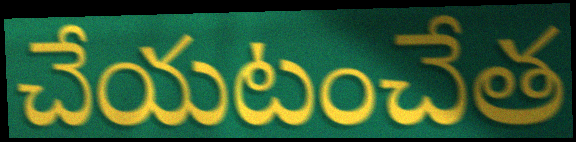
చేయటంచేత